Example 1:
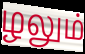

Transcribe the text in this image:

ழலும்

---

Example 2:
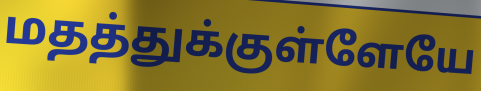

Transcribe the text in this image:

மதத்துக்குள்ளேயே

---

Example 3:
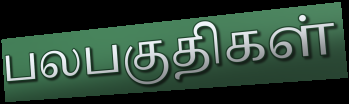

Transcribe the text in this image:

பலபகுதிகள்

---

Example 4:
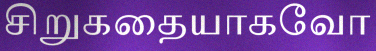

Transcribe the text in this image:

சிறுகதையாகவோ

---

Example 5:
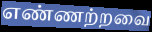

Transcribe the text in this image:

எண்ணற்றவை